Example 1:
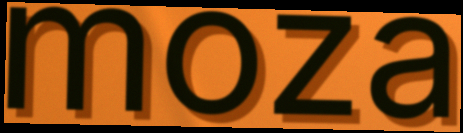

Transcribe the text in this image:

moza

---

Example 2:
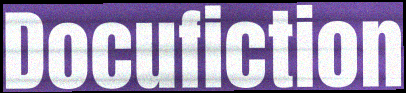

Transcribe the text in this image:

Docufiction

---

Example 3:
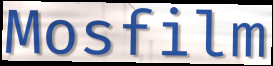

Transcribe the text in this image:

Mosfilm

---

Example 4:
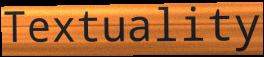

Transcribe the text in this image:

Textuality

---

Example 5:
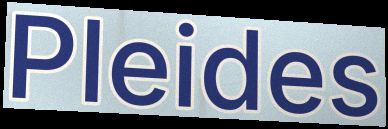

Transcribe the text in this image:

Pleides